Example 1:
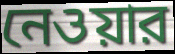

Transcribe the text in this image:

নেওয়ার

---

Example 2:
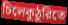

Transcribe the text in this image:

চিলেকুঠুরিতে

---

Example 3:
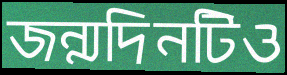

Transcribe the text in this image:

জন্মদিনটিও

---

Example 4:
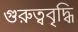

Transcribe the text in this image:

গুরুত্ববৃদ্ধি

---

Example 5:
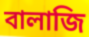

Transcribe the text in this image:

বালাজি